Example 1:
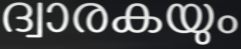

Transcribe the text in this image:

ദ്വാരകയും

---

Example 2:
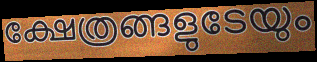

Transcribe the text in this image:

ക്ഷേത്രങ്ങളുടേയും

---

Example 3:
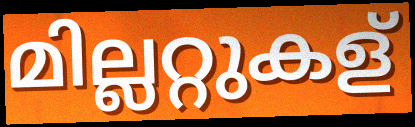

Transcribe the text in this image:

മില്ലറ്റുകള്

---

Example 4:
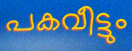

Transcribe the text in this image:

പകവീട്ടും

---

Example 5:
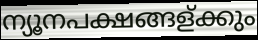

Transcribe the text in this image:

ന്യൂനപക്ഷങ്ങള്ക്കും